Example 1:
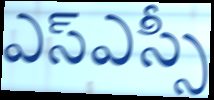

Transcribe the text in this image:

ఎస్ఎస్సీ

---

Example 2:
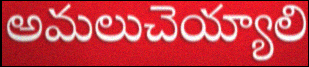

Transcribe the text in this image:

అమలుచెయ్యాలి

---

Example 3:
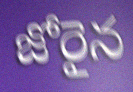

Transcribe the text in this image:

జోరైన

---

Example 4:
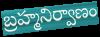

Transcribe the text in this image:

బ్రహ్మనిర్వాణం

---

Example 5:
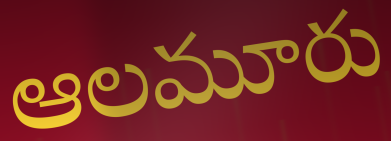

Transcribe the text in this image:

ఆలమూరు